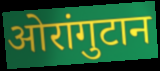
ओरांगुटान